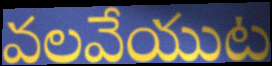
వలవేయుట